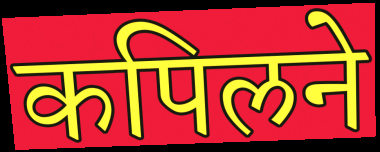
कपिलने